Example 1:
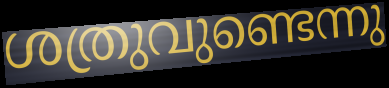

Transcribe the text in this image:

ശത്രുവുണ്ടെന്നു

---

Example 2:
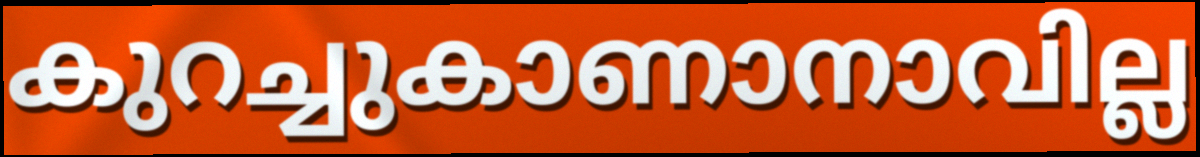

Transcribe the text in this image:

കുറച്ചുകാണാനാവില്ല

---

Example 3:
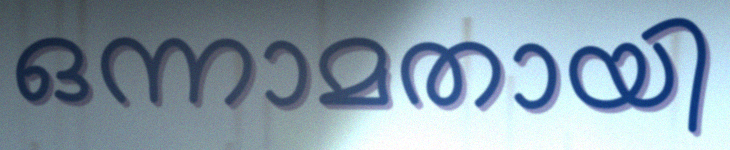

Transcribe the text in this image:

ഒന്നാമതായി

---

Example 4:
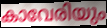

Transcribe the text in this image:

കാവേരിയും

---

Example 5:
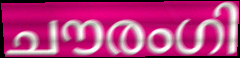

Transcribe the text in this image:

ചൗരംഗി